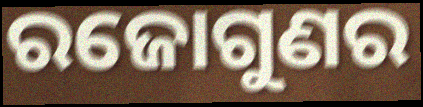
ରଜୋଗୁଣର